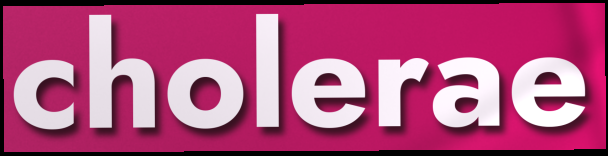
cholerae